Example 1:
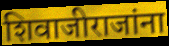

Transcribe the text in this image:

शिवाजीराजांना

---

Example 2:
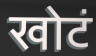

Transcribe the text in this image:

खोटं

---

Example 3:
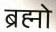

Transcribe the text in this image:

ब्रह्मो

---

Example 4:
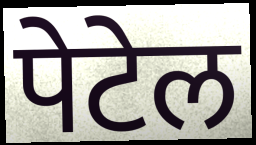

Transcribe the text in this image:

पेटेल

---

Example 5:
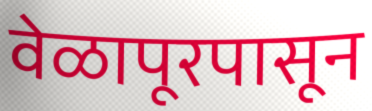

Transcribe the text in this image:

वेळापूरपासून